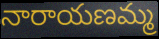
నారాయణమ్మ